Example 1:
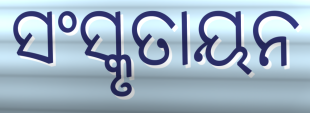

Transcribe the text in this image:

ସଂସ୍କୃତାୟନ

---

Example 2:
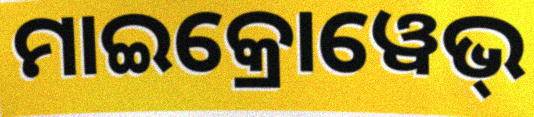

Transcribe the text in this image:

ମାଇକ୍ରୋୱେଭ୍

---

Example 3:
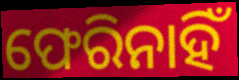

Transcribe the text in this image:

ଫେରିନାହିଁ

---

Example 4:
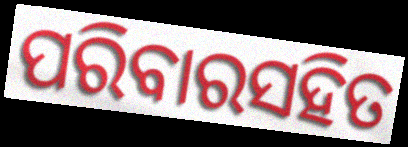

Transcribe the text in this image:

ପରିବାରସହିତ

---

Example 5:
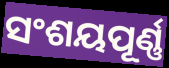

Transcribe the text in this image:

ସଂଶୟପୂର୍ଣ୍ଣ